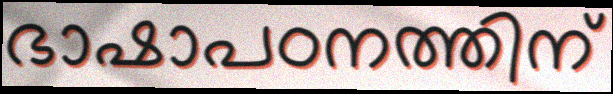
ഭാഷാപഠനത്തിന്